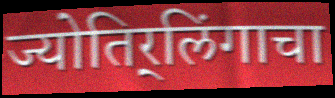
ज्योतिर्लिंगाचा